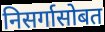
निसर्गासोबत